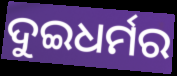
ଦୁଇଧର୍ମର